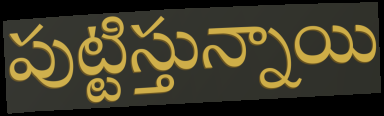
పుట్టిస్తున్నాయి